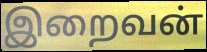
இறைவன்